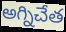
అగ్నిచేత